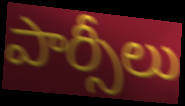
పార్సీలు